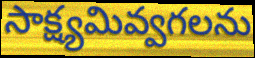
సాక్ష్యమివ్వగలను